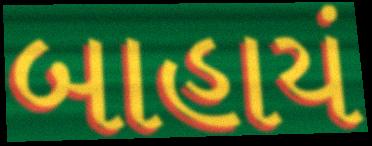
બાહાયં